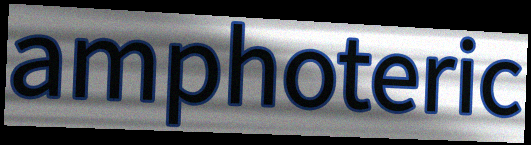
amphoteric